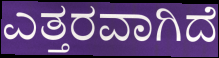
ಎತ್ತರವಾಗಿದೆ